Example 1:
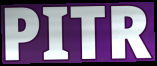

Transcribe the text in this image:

PITR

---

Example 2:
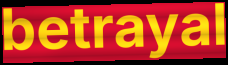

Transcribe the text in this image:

betrayal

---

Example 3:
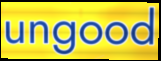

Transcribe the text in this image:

ungood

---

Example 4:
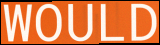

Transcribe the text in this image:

WOULD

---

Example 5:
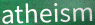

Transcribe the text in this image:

atheism